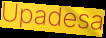
Upadesa